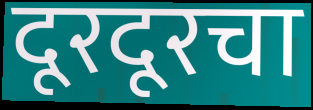
दूरदूरचा